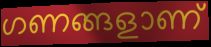
ഗണങ്ങളാണ്